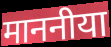
माननीया